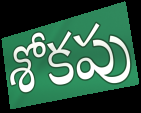
శోకపు